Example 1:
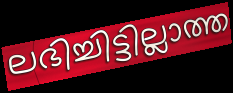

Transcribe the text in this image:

ലഭിച്ചിട്ടില്ലാത്ത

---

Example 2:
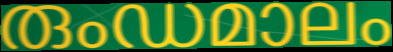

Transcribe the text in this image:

രുംഡമാലം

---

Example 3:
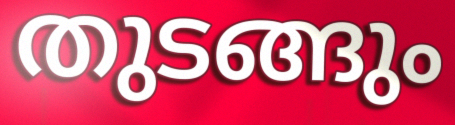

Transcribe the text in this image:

തുടങ്ങും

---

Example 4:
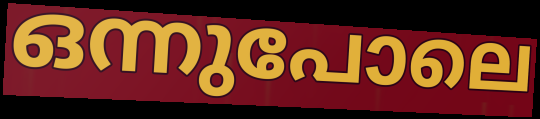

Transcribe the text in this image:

ഒന്നുപോലെ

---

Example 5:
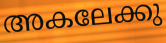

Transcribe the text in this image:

അകലേക്കു